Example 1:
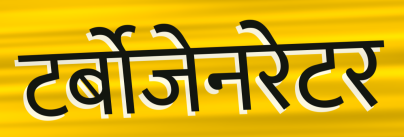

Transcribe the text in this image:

टर्बोजेनरेटर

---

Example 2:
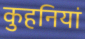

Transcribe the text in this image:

कुहनियां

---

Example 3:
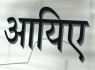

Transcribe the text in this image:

आयिए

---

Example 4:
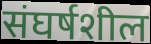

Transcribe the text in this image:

संघर्षशील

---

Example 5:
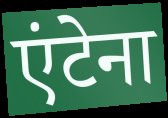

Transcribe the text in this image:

एंटेना